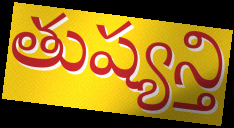
తుష్యన్తి